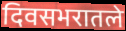
दिवसभरातले